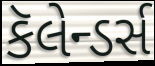
કૅલેન્ડર્સ